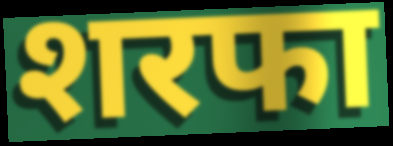
शरफा